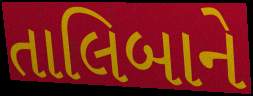
તાલિબાને